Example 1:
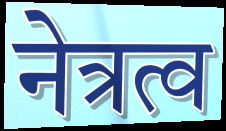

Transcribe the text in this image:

नेत्रत्व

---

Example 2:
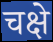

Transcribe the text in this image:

चक्षे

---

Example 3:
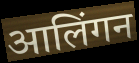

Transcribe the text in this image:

आलिंगन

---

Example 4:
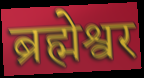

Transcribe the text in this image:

ब्रह्मेश्वर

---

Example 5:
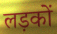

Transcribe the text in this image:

लड़कों